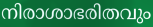
നിരാശാഭരിതവും